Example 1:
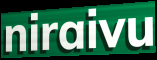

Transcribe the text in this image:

niraivu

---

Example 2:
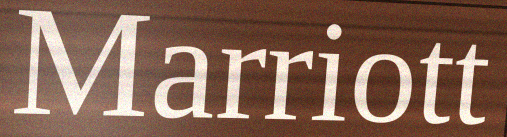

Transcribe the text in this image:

Marriott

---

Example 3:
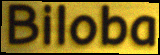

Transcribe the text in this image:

Biloba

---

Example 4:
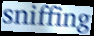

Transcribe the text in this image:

sniffing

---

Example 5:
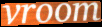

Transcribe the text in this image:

vroom